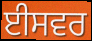
ਈਸਵਰ